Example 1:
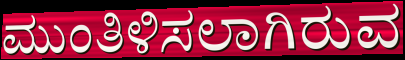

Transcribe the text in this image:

ಮುಂತಿಳಿಸಲಾಗಿರುವ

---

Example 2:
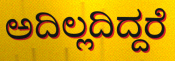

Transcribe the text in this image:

ಅದಿಲ್ಲದಿದ್ದರೆ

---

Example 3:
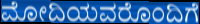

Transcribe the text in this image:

ಮೋದಿಯವರೊಂದಿಗೆ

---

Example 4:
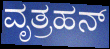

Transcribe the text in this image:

ವೃತ್ರಹನ್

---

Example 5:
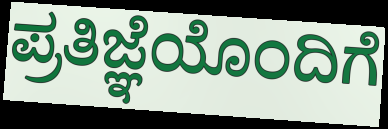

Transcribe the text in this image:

ಪ್ರತಿಜ್ಞೆಯೊಂದಿಗೆ